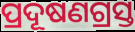
ପ୍ରଦୂଷଣଗ୍ରସ୍ତ